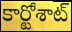
కార్టోశాట్